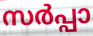
സർപ്പാ